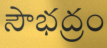
సౌభద్రం